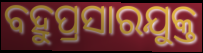
ବହୁପ୍ରସାରଯୁକ୍ତ